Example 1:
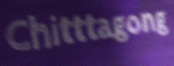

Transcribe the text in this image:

Chitttagong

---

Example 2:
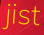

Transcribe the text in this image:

jist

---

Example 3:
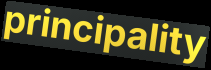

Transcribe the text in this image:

principality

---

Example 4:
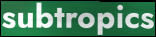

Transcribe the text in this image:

subtropics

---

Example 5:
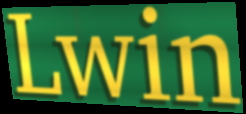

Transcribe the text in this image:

Lwin